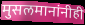
मुसलमानांनीही